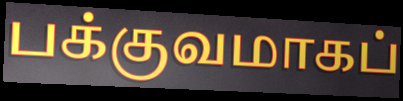
பக்குவமாகப்